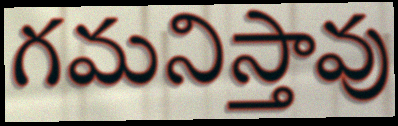
గమనిస్తావు